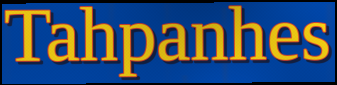
Tahpanhes